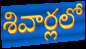
శివార్లలో